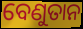
ବେଣୁତାନ